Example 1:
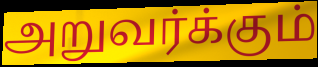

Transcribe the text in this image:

அறுவர்க்கும்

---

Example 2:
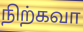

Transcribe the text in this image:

நிற்கவா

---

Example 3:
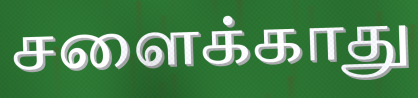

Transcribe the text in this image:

சளைக்காது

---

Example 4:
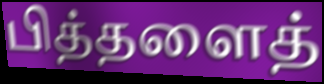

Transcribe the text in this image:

பித்தளைத்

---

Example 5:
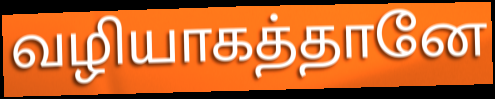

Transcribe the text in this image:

வழியாகத்தானே